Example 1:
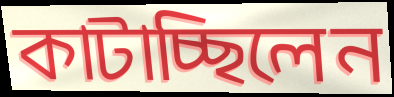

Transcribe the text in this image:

কাটাচ্ছিলেন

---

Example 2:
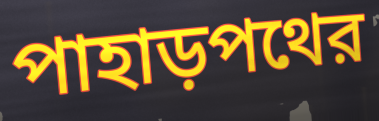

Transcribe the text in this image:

পাহাড়পথের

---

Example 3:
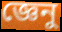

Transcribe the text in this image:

জ্ঞেনু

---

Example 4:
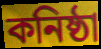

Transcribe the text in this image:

কনিষ্ঠা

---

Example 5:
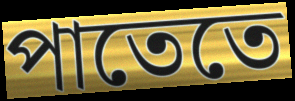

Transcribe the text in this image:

পাতেতে